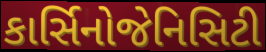
કાર્સિનોજેનિસિટી